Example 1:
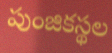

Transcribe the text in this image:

పుంజికస్థల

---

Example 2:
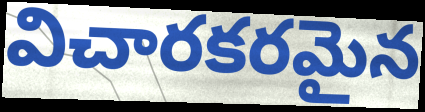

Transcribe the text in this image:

విచారకరమైన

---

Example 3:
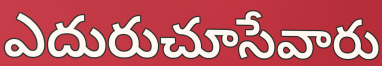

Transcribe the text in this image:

ఎదురుచూసేవారు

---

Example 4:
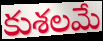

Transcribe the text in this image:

కుశలమే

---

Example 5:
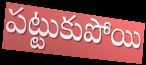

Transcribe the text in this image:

పట్టుకుపోయి